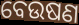
ବେଉଷଣ